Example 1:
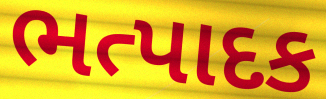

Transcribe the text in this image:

ભત્પાદક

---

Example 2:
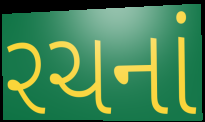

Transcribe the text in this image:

રચનાં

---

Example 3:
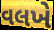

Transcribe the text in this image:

વલખે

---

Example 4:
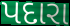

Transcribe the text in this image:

પદારા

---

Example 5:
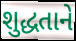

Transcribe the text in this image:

શુદ્ધતાને